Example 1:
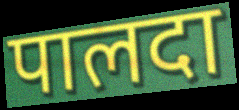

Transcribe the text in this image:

पालदा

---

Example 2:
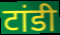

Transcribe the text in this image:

टांडी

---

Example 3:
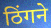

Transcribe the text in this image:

ठिंगने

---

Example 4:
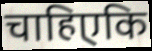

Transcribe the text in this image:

चाहिएकि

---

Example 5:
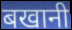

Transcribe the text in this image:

बखानी